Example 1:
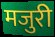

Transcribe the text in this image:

मजुरी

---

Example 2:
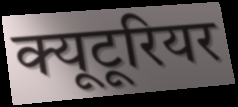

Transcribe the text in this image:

क्यूटूरियर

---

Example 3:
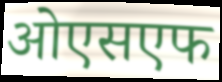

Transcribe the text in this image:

ओएसएफ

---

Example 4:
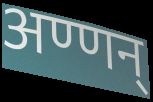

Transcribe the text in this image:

अण्णन्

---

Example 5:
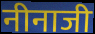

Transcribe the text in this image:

नीनाजी